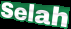
Selah